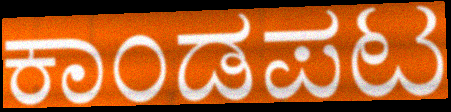
ಕಾಂಡಪಟ